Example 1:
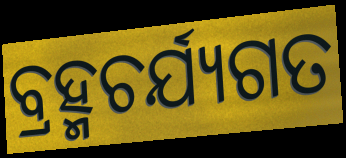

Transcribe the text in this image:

ବ୍ରହ୍ମଚର୍ଯ୍ୟଗତ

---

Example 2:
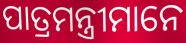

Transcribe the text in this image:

ପାତ୍ରମନ୍ତ୍ରୀମାନେ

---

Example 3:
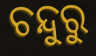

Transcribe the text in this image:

ଚନ୍ଦୁରୁ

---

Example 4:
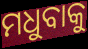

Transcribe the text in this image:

ମଧୁବାକୁ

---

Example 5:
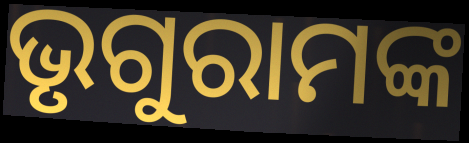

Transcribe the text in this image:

ଭୃଗୁରାମଙ୍କ